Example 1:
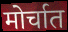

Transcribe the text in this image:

मोर्चात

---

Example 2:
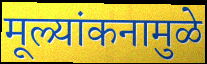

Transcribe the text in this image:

मूल्यांकनामुळे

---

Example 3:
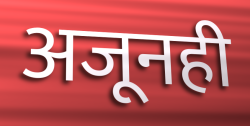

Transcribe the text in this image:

अजूनही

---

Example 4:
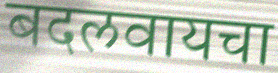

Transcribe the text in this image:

बदलवायचा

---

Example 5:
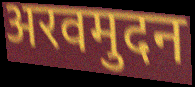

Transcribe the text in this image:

अरवमुदन